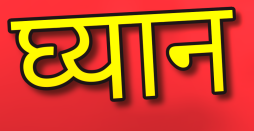
घ्यान